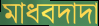
মাধবদাদা